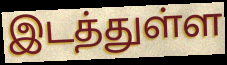
இடத்துள்ள